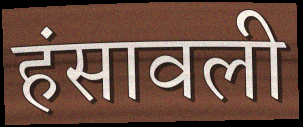
हंसावली